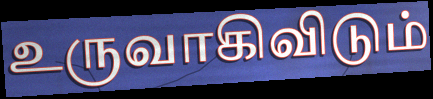
உருவாகிவிடும்